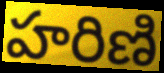
హరిణి